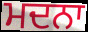
ਮਦਨਾ